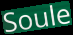
Soule